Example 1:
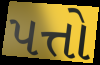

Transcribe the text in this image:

પત્તો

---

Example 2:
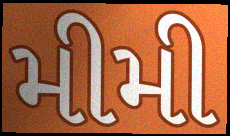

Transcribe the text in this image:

મીમી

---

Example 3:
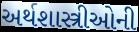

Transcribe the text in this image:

અર્થશાસ્ત્રીઓની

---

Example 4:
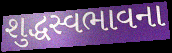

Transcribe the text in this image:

શુદ્ધસ્વભાવના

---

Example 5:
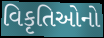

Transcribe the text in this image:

વિકૃતિઓનો